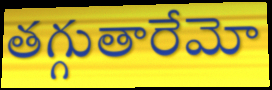
తగ్గుతారేమో